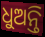
ଧୁଅନ୍ତି